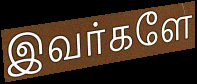
இவர்களே